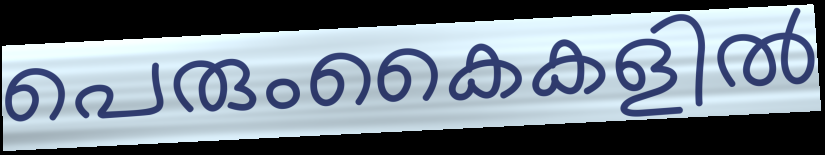
പെരുംകൈകളിൽ